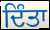
ਦਿੰਤਾ